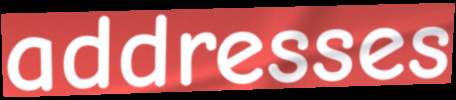
addresses